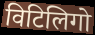
विटिलिगो